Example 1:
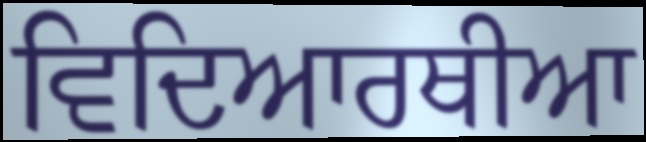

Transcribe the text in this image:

ਵਿਦਿਆਰਥੀਆ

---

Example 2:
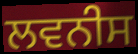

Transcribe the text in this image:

ਲਵਨੀਸ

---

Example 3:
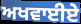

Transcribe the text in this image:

ਅਖਵਾਈਏ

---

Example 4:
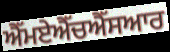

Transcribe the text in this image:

ਐੱਮਏਐੱਚਐੱਸਆਰ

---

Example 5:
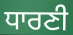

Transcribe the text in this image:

ਧਾਰਣੀ